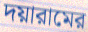
দয়ারামের